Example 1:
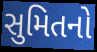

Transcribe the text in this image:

સુમિતનો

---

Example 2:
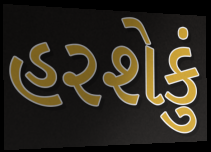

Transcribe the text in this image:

હરશેકું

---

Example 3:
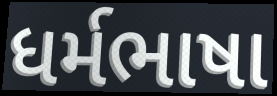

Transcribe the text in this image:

ધર્મભાષા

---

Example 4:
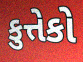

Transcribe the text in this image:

કુત્તેકો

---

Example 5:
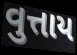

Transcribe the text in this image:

વુત્તાય